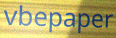
vbepaper